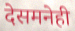
देसमनेही